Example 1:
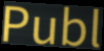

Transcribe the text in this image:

Publ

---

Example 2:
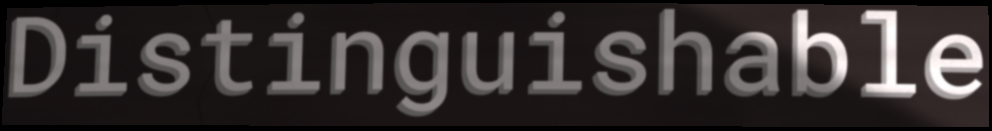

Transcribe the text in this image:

Distinguishable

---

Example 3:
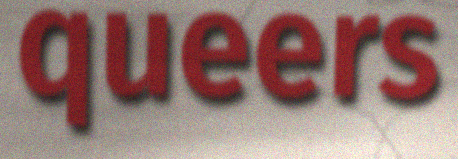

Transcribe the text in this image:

queers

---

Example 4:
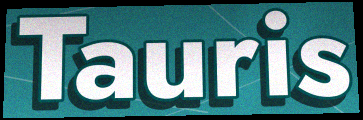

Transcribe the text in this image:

Tauris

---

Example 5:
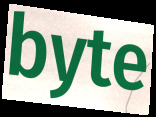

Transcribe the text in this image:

byte